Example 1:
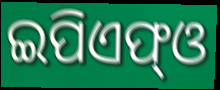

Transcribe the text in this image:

ଇପିଏଫ୍ଓ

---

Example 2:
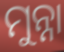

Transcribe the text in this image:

ମୁନ୍ନା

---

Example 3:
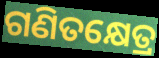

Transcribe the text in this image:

ଗଣିତକ୍ଷେତ୍ର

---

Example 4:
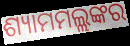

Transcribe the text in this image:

ଶ୍ୟାମମଲ୍ଲଙ୍କର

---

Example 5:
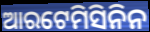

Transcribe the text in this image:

ଆରଟେମିସିନିନ